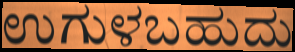
ಉಗುಳಬಹುದು